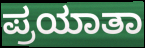
ಪ್ರಯಾತಾ